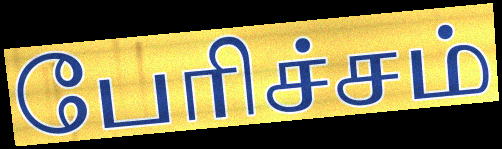
பேரிச்சம்